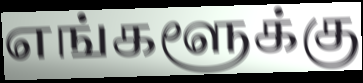
எங்களூக்கு